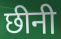
छीनी